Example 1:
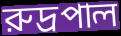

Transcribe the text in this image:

রুদ্রপাল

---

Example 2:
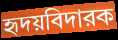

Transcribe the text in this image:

হৃদয়বিদারক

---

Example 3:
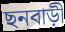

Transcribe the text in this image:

ছনবাড়ী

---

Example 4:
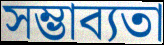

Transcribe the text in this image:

সম্ভাব্যতা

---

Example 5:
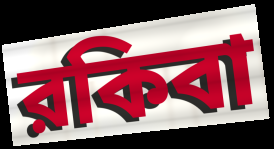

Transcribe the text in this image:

রকিবা